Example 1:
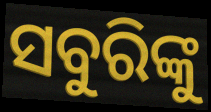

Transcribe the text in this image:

ସବୁରିଙ୍କୁ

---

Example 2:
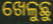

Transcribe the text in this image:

ଖେଳୁଛୁ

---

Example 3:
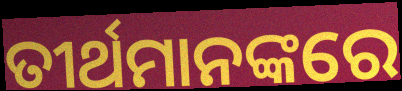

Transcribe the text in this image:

ତୀର୍ଥମାନଙ୍କରେ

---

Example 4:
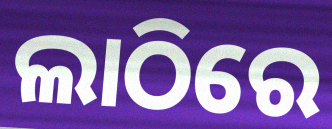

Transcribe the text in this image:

ଲାଠିରେ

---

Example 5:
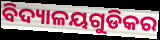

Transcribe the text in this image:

ବିଦ୍ୟାଳୟଗୁଡିକର